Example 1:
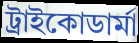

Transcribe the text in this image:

ট্রাইকোডার্মা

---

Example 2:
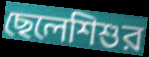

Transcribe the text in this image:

ছেলেশিশুর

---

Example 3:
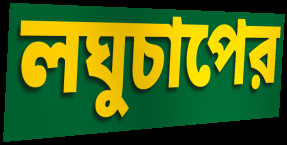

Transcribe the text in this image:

লঘুচাপের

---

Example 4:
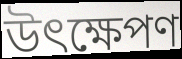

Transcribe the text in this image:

উৎক্ষেপণ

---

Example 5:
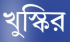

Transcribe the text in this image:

খুস্কির